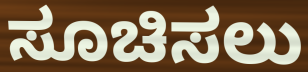
ಸೂಚಿಸಲು